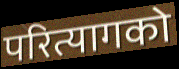
परित्यागको